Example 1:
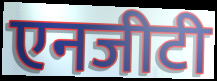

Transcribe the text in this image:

एनजीटी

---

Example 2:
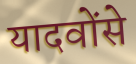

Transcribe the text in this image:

यादवोंसे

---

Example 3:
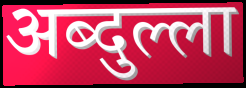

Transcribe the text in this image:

अब्दुल्ला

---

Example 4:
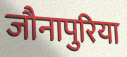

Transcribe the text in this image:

जौनापुरिया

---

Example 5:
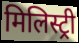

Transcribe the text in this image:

मिलिस्ट्री